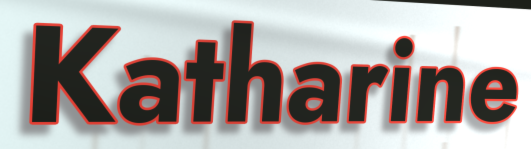
Katharine